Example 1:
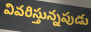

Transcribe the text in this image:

వివరిస్తున్నపుడు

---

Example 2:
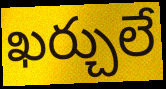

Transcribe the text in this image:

ఖర్చులే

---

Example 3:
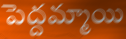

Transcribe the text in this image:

పెద్దమ్మాయి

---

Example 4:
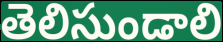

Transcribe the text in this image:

తెలిసుండాలి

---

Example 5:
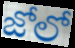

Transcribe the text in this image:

జోలో